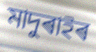
মাদুৰাইৰ